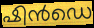
ഷിൻഡെ